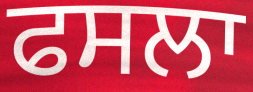
ਫਸਲਾ